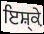
ਇਸ਼੍ਕ਼ੇ